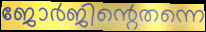
ജോർജിന്റെതന്നെ